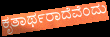
ಕೃತಾರ್ಥರಾದೆವೆಂದು